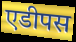
एडीपस